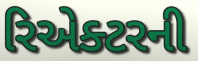
રિએક્ટરની